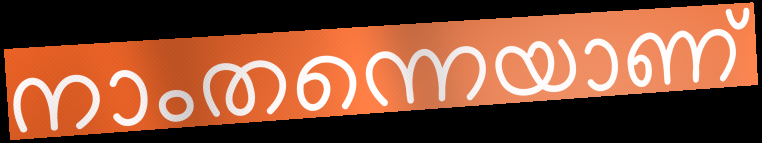
നാംതന്നെയാണ്